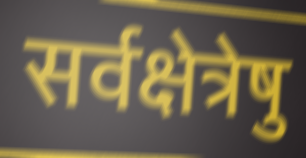
सर्वक्षेत्रेषु